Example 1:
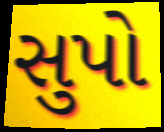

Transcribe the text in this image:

સુપો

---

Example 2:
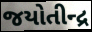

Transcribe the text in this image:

જયોતીન્દ્ર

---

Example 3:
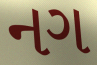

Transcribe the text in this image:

નગ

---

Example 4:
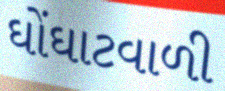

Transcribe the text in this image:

ઘોંઘાટવાળી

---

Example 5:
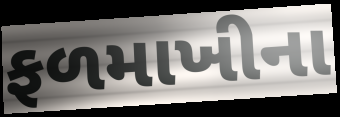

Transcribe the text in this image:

ફળમાખીના